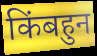
किंबहुन